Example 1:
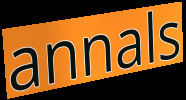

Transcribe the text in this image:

annals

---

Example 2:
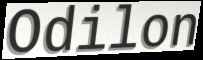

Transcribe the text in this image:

Odilon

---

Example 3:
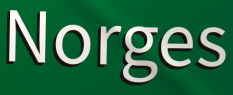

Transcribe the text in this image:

Norges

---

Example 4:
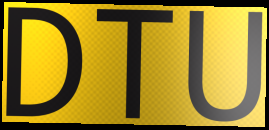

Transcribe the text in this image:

DTU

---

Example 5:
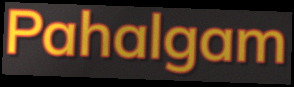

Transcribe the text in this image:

Pahalgam